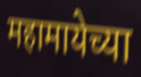
महामायेच्या